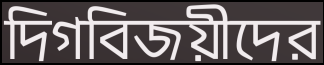
দিগবিজয়ীদের